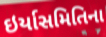
ઇર્યાસમિતિના